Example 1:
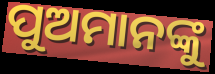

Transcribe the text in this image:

ପୁଅମାନଙ୍କୁ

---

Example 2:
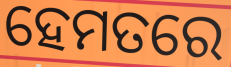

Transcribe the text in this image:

ହେମତରେ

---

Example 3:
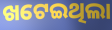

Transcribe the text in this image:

ଖଟେଇଥିଲା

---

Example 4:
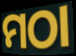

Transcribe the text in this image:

ମଠା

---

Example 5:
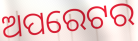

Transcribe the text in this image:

ଅପରେଟର